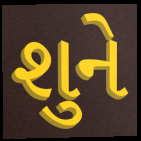
શુને